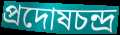
প্রদোষচন্দ্র